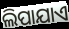
ଲିପାଯାଏ